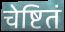
चेष्टितं